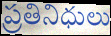
ప్రతినిధులు